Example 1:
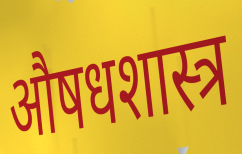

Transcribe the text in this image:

औषधशास्त्र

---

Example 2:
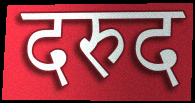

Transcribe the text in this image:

दरुद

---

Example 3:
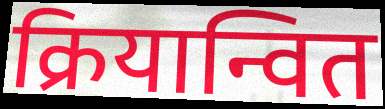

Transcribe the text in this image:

क्रियान्वित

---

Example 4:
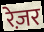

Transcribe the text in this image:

रेज़र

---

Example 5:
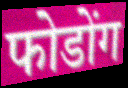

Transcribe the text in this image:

फोडोंग